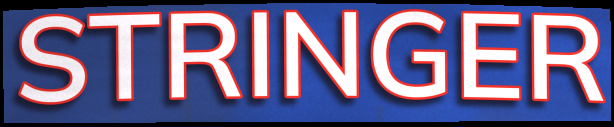
STRINGER